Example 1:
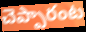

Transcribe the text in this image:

చెప్పారంట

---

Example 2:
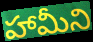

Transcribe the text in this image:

హామీని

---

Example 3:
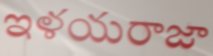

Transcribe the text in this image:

ఇళయరాజా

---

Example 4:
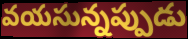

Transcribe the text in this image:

వయసున్నప్పుడు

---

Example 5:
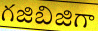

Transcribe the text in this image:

గజిబిజిగా